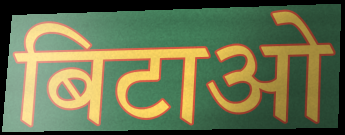
बिटाओ